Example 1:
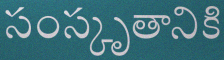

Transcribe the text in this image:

సంస్కృతానికి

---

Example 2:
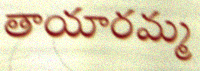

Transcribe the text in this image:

తాయారమ్మ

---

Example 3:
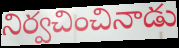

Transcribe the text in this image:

నిర్వచించినాడు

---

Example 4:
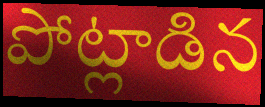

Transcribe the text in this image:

పోట్లాడిన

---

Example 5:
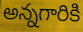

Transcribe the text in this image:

అన్నగారికి